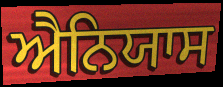
ਐਨਿਯਾਸ